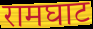
रामघाट